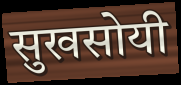
सुखसोयी